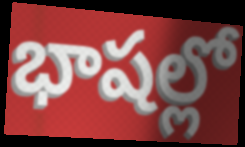
భాషల్లో